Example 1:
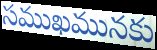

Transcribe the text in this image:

సముఖమునకు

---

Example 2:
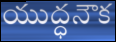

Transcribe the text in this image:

యుద్ధనౌక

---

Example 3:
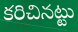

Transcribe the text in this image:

కరిచినట్టు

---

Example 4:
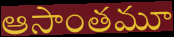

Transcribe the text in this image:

ఆసాంతమూ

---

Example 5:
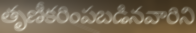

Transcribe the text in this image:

తృణీకరింపబడినవారిని